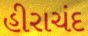
હીરાચંદ